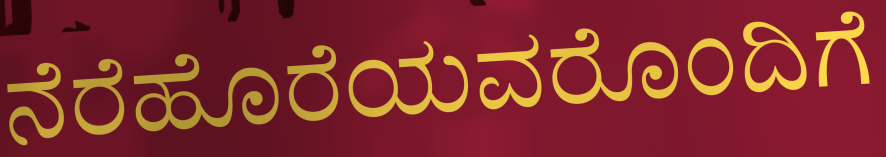
ನೆರೆಹೊರೆಯವರೊಂದಿಗೆ